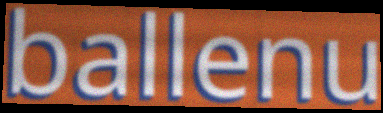
ballenu